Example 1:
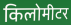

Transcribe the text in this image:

किलोमीटर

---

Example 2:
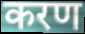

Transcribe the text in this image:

करण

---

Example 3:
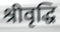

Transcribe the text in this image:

श्रीवृद्धि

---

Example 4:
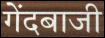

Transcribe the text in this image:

गेंदबाजी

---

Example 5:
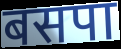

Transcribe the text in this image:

बसपा